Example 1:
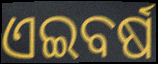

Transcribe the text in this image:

ଏଇବର୍ଷ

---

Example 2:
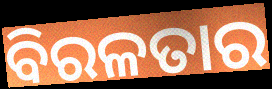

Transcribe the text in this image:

ବିରଳତାର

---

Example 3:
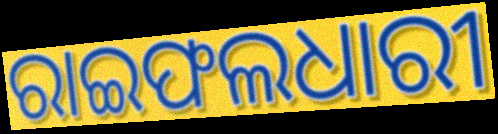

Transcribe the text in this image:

ରାଇଫଲଧାରୀ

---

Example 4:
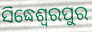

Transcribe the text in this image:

ସିଦ୍ଧେଶ୍ଵରପୁର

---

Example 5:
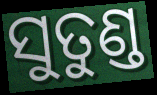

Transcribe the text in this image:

ସୁତୁଣ୍ଡ